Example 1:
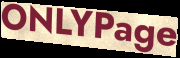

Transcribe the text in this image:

ONLYPage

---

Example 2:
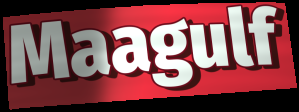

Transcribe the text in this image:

Maagulf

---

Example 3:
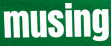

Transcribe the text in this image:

musing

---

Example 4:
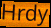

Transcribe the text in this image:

Hrdy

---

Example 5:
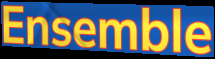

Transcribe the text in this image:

Ensemble